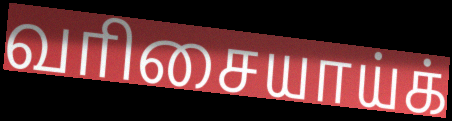
வரிசையாய்க்